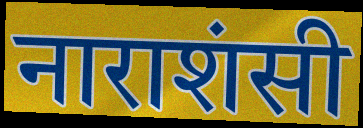
नाराशंसी